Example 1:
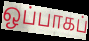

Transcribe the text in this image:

ஒப்பாகப்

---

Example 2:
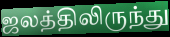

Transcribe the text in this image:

ஜலத்திலிருந்து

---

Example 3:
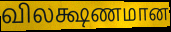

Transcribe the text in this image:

விலக்ஷணமான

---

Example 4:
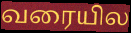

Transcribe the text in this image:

வரையில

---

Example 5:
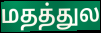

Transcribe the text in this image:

மதத்துல